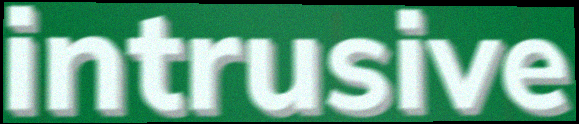
intrusive